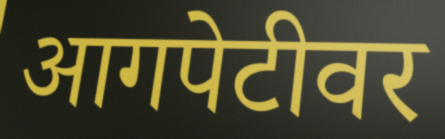
आगपेटीवर